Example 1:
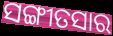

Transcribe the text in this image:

ସଙ୍ଗୀତସାର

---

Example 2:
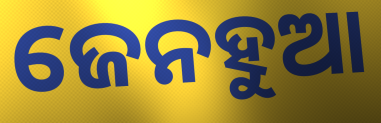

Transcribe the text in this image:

ଜେନହୁଆ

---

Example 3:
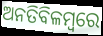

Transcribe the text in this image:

ଅନତିବିଳମ୍ବରେ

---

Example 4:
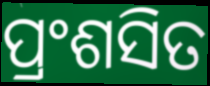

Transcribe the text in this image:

ପ୍ରଂଶସିତ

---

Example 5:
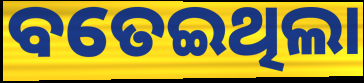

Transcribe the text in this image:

ବତେଇଥିଲା